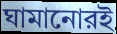
ঘামানোরই